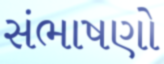
સંભાષણો